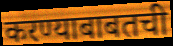
करण्याबाबतची